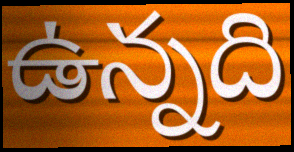
ఉన్నది